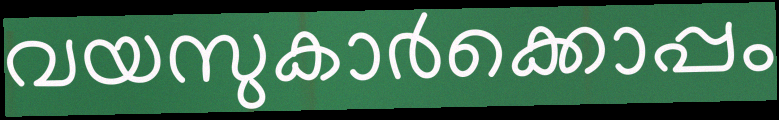
വയസുകാർക്കൊപ്പം